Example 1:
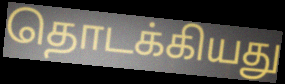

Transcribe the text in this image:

தொடக்கியது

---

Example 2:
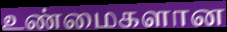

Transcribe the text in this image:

உண்மைகளான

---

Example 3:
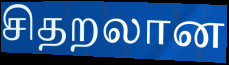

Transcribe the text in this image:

சிதறலான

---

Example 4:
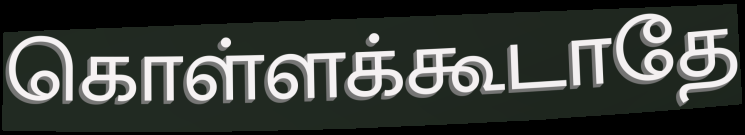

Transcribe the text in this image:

கொள்ளக்கூடாதே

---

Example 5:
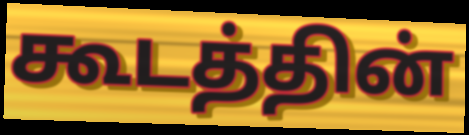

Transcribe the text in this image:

கூடத்தின்